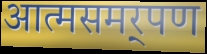
आत्मसमर्पण